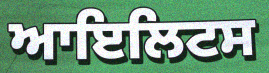
ਆਇਲਿਟਸ